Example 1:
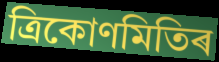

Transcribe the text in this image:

ত্ৰিকোণমিতিৰ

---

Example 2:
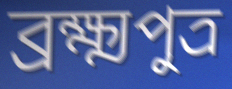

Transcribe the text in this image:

ব্ৰক্ষ্মপুত্ৰ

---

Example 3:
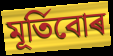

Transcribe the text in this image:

মূৰ্তিবোৰ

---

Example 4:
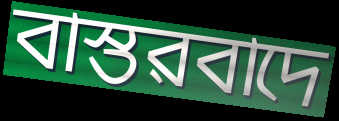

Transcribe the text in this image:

বাস্তৱবাদে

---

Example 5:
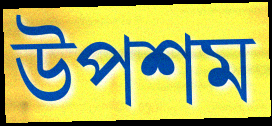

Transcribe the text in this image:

উপশম